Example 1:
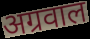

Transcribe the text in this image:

अग्रवाल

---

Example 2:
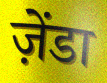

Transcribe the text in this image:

ज़ेंडा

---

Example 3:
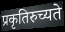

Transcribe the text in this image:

प्रकृतिरुच्यते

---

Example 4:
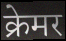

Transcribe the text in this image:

क्रेमर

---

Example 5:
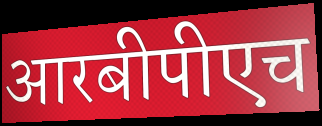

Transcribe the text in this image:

आरबीपीएच